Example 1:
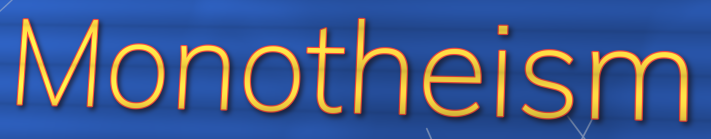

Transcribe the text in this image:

Monotheism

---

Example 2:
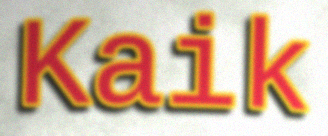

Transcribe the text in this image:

Kaik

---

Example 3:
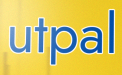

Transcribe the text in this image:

utpal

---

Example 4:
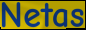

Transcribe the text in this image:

Netas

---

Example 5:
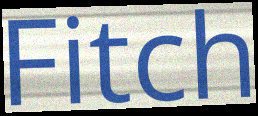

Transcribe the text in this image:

Fitch